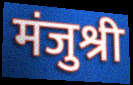
मंजुश्री